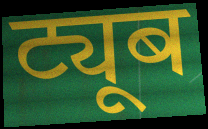
ट्यूब